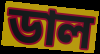
ডাল